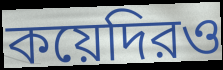
কয়েদিরও